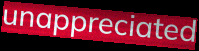
unappreciated